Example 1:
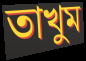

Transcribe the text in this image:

তাখুম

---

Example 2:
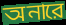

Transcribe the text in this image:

অনারে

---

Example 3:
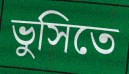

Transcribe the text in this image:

ভুসিতে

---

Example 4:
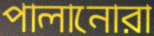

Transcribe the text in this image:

পালানোরা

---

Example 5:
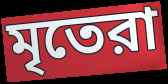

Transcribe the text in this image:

মৃতেরা